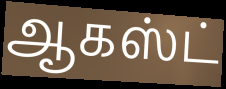
ஆகஸ்ட்